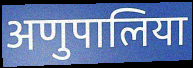
अणुपालिया